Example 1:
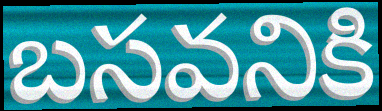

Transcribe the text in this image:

బసవనికి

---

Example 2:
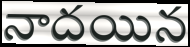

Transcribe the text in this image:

నాదయిన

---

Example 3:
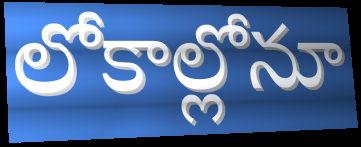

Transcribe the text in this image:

లోకాల్లోనూ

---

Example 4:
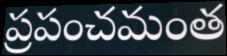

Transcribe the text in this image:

ప్రపంచమంత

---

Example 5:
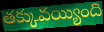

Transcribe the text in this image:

తక్కువయ్యింది